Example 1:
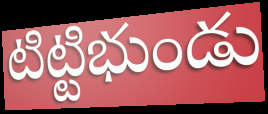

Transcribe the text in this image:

టిట్టిభుండు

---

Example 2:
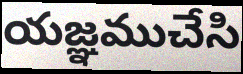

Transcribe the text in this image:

యజ్ఞముచేసి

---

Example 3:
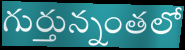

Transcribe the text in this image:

గుర్తున్నంతలో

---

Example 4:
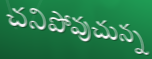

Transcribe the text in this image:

చనిపోవుచున్న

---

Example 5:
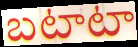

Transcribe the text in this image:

బటాటా